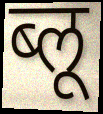
ब्लू